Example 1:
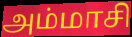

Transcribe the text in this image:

அம்மாசி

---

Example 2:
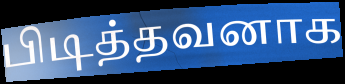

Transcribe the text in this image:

பிடித்தவனாக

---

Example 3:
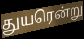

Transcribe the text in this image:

துயரென்று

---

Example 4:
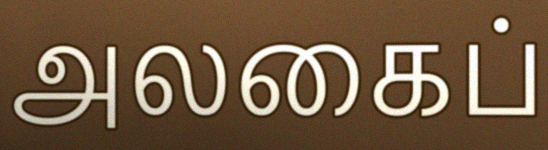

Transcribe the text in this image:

அலகைப்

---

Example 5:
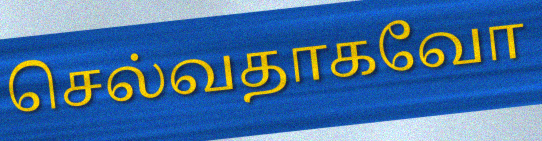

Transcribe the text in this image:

செல்வதாகவோ